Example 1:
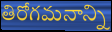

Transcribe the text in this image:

తిరోగమనాన్ని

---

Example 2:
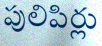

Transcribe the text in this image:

పులిపిర్లు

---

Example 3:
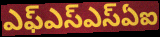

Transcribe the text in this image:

ఎఫ్ఎస్ఎస్ఏఐ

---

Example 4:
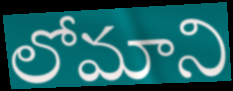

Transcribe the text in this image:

లోమాని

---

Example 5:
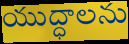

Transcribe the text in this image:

యుద్ధాలను